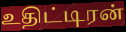
உதிட்டிரன்